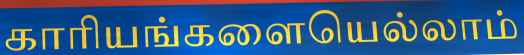
காரியங்களையெல்லாம்